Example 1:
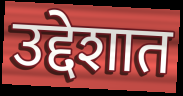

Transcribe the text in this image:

उद्देशात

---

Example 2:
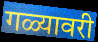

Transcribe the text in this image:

गळ्यावरी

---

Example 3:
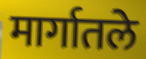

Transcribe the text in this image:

मार्गातले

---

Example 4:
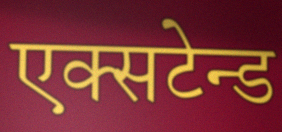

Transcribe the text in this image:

एक्सटेन्ड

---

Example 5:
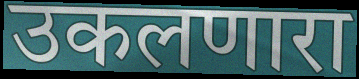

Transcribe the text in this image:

उकलणारा